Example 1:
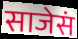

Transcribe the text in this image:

साजेसं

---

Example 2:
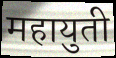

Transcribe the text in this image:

महायुती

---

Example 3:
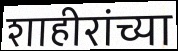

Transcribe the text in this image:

शाहीरांच्या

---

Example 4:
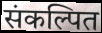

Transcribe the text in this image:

संकल्पित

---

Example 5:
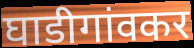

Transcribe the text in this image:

घाडीगांवकर